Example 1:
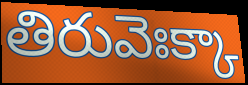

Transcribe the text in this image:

తిరువెఃక్కా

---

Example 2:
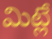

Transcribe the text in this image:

మిట్లే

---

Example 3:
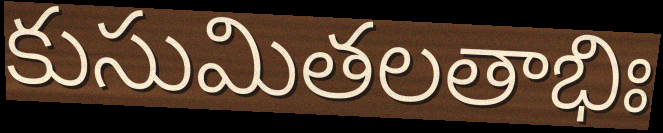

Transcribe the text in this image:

కుసుమితలతాభిః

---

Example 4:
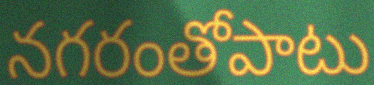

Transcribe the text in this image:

నగరంతోపాటు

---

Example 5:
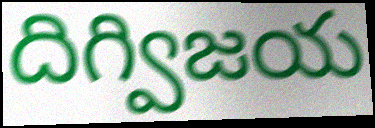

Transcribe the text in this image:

దిగ్విజయ